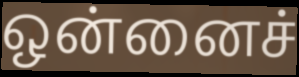
ஒன்னைச்